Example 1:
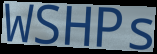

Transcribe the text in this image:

WSHPs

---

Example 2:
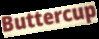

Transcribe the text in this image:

Buttercup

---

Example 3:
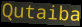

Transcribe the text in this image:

Qutaiba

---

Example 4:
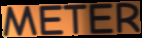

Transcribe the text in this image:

METER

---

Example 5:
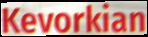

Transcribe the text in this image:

Kevorkian